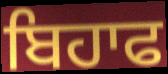
ਬਿਹਾਫ